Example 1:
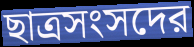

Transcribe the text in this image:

ছাত্রসংসদের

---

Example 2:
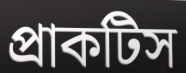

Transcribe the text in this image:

প্রাকটিস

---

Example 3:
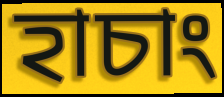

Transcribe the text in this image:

হাচাং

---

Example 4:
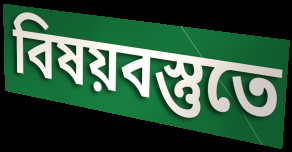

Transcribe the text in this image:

বিষয়বস্তুতে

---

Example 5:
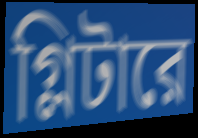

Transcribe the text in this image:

গ্লিটারে